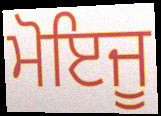
ਮੋਇਜੂ